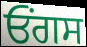
ਓਂਗਸ